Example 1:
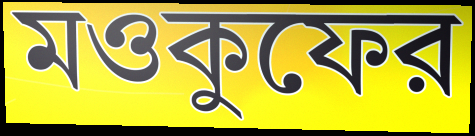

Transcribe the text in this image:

মওকুফের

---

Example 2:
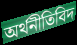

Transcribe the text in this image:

অর্থনীতিবিদ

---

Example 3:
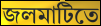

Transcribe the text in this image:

জলমাটিতে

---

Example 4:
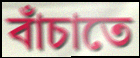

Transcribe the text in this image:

বাঁচাতে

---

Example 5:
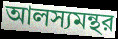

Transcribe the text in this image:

আলস্যমন্থর